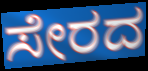
ಸೇರದ